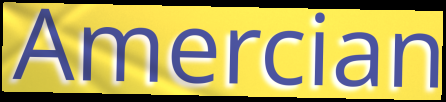
Amercian